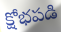
క్షోభపడి